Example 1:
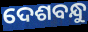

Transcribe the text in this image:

ଦେଶବନ୍ଧୁ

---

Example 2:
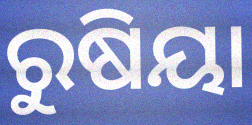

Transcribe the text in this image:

ରୁଷିୟା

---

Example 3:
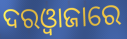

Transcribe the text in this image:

ଦରଓ୍ୱାଜାରେ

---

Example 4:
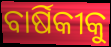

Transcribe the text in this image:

ବାର୍ଷିକୀକୁ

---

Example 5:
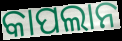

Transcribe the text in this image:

କାପଲାନ